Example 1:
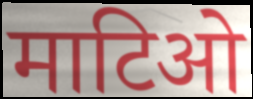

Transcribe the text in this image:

माटिओ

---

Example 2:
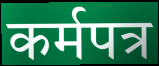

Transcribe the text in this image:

कर्मपत्र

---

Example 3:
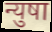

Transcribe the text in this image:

न्युषा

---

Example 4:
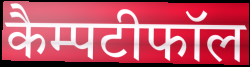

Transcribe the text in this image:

कैम्पटीफॉल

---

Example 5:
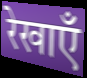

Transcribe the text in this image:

रेखाएँ